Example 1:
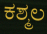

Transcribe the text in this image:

ಕಶ್ಮಲ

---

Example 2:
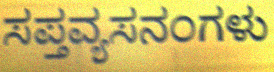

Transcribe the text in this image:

ಸಪ್ತವ್ಯಸನಂಗಳು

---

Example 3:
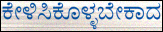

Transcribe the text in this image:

ಕೇಳಿಸಿಕೊಳ್ಳಬೇಕಾದ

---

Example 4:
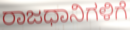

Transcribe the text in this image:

ರಾಜಧಾನಿಗಳಿಗೆ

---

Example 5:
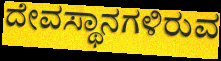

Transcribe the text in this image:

ದೇವಸ್ಥಾನಗಳಿರುವ